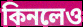
কিনলেও